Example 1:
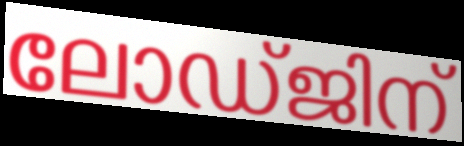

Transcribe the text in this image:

ലോഡ്ജിന്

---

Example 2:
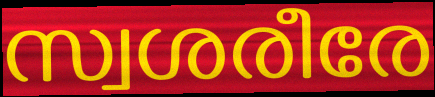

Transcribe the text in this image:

സ്വശരീരേ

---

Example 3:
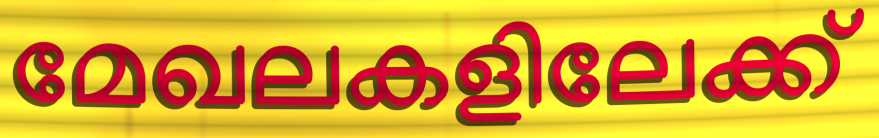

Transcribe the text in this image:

മേഖലകളിലേക്ക്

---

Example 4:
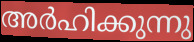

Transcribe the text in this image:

അർഹിക്കുന്നു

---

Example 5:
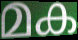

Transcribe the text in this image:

മക